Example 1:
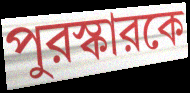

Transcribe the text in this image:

পুরস্কারকে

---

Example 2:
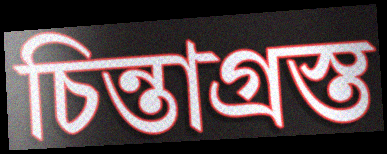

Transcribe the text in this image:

চিন্তাগ্রস্ত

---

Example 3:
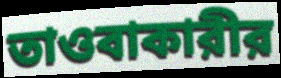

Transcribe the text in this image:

তাওবাকারীর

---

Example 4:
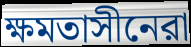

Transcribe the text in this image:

ক্ষমতাসীনেরা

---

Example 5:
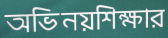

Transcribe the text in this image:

অভিনয়শিক্ষার